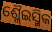
ଶ୍ଲୈଇସ୍ମିକ